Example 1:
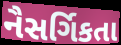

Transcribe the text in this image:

નૈસર્ગિકતા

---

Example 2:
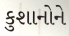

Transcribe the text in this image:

કુશાનોને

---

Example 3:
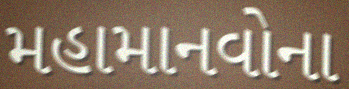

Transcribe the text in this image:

મહામાનવોના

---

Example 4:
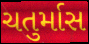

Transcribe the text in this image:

ચતુર્માસ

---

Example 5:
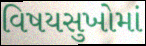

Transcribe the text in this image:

વિષયસુખોમાં